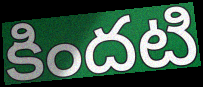
కిందటి